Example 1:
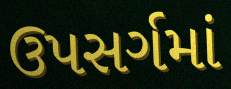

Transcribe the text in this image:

ઉપસર્ગમાં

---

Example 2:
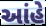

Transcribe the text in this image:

આંહે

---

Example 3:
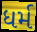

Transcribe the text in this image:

ધર્મ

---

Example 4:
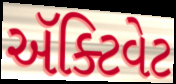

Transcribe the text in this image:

ઍક્ટિવેટ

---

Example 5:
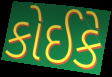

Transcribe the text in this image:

કોઈકે